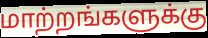
மாற்றங்களுக்கு